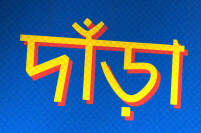
দাঁড়া